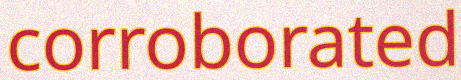
corroborated